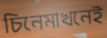
চিনেমাখনেই